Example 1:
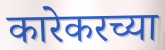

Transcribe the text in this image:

कारेकरच्या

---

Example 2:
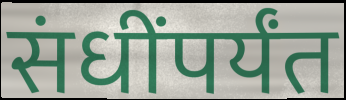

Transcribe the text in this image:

संधींपर्यंत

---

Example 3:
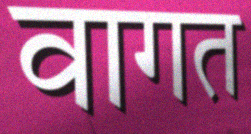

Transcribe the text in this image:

वागत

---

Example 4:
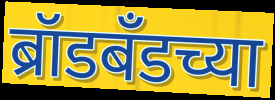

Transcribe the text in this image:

ब्रॉडबँडच्या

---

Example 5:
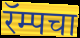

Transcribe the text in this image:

रॅम्पचा